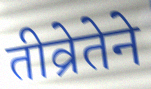
तीव्रेतेने